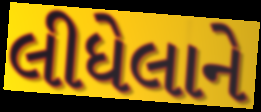
લીધેલાને